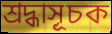
শ্রদ্ধাসূচক